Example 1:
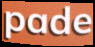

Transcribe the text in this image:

pade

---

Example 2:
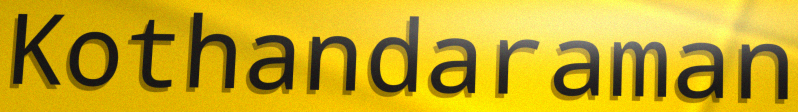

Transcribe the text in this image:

Kothandaraman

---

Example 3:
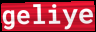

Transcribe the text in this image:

geliye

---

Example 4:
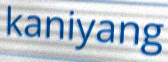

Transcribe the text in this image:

kaniyang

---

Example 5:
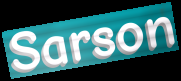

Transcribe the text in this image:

Sarson